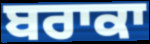
ਬਰਾਕਾ